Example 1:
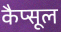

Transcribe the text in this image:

कैप्सूल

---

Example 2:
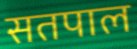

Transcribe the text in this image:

सतपाल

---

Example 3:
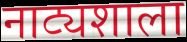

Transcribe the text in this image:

नाट्यशाला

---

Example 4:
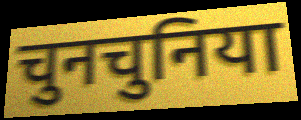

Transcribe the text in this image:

चुनचुनिया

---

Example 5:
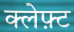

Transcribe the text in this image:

क्लेफ़्ट